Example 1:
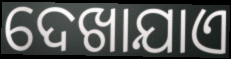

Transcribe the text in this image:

ଦେଖାଯାଏ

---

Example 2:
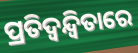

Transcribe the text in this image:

ପ୍ରତିଦ୍ୱନ୍ଦ୍ବିତାରେ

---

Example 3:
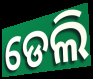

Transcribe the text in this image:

ଡେଲି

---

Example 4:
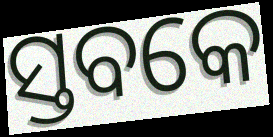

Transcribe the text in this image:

ସ୍ତବକେ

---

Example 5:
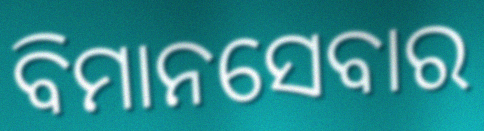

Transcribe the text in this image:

ବିମାନସେବାର